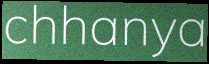
chhanya